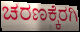
ಚರಣಕ್ಕೆರಗಿ